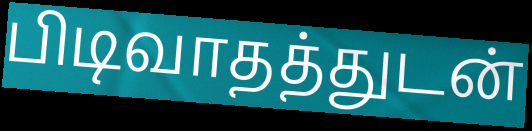
பிடிவாதத்துடன்